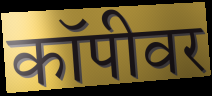
कॉपीवर